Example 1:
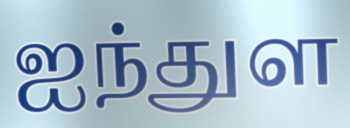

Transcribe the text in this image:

ஐந்துள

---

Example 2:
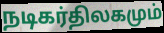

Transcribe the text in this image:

நடிகர்திலகமும்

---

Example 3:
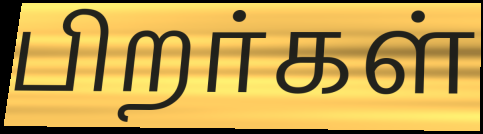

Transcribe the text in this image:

பிறர்கள்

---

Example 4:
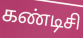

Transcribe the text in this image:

கண்டிசி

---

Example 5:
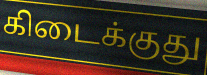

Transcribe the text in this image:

கிடைக்குது